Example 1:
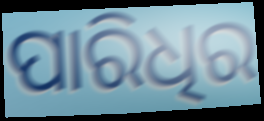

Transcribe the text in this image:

ପାରିଧିର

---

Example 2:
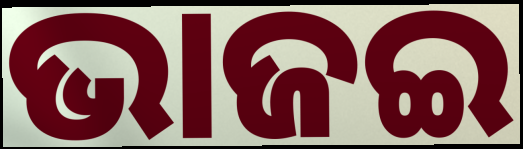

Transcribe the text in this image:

ଭାଜଇ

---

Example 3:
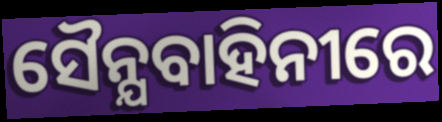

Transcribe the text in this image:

ସୈନ୍ଯବାହିନୀରେ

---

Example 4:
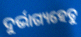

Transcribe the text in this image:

ଦୁର୍ଭାଗ୍ୟହେତୁ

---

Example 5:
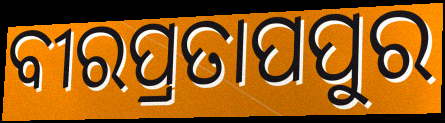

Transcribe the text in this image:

ବୀରପ୍ରତାପପୁର